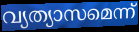
വ്യത്യാസമെന്ന്